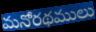
మనోరథములు